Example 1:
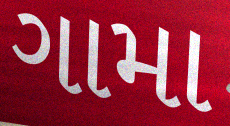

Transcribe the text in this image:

ગામા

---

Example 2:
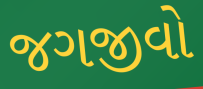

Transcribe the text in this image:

જગજીવો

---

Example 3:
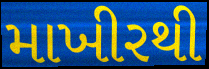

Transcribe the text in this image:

માખીરથી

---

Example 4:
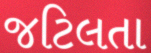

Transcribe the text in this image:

જટિલતા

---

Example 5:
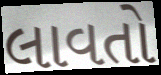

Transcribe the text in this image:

લાવતો